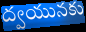
ద్వయునకు